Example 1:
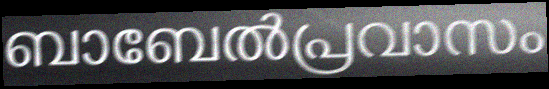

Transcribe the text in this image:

ബാബേൽപ്രവാസം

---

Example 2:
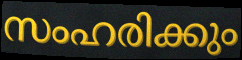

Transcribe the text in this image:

സംഹരിക്കും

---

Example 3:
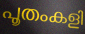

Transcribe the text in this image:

പൂതംകളി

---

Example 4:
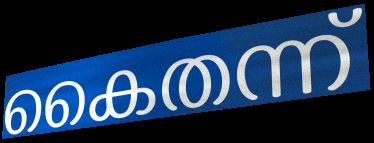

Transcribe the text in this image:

കൈതന്ന്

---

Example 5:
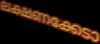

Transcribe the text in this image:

ലക്ഷണക്കേടാ